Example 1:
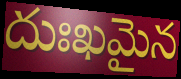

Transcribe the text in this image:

దుఃఖమైన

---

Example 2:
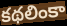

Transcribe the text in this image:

కథలింకా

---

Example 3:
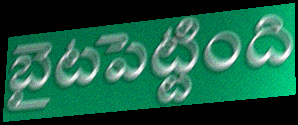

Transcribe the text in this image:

బైటపెట్టింది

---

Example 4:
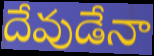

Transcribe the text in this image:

దేవుడేనా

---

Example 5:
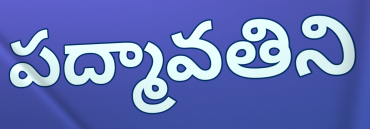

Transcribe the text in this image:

పద్మావతిని